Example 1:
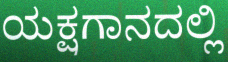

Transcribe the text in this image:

ಯಕ್ಷಗಾನದಲ್ಲಿ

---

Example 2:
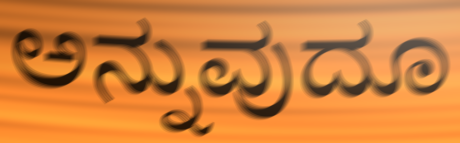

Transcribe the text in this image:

ಅನ್ನುವುದೂ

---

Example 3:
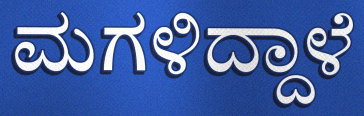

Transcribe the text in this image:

ಮಗಳಿದ್ದಾಳೆ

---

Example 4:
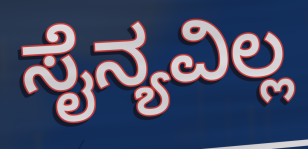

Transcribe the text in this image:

ಸೈನ್ಯವಿಲ್ಲ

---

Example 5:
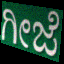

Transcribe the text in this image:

ಗೀಜೆ